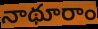
నాథూరాం